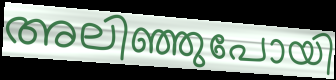
അലിഞ്ഞുപോയി